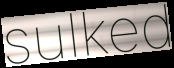
sulked